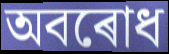
অবৰোধ